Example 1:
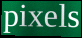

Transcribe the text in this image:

pixels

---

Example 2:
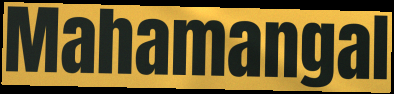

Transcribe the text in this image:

Mahamangal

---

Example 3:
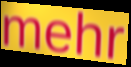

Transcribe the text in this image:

mehr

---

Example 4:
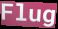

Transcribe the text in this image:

Flug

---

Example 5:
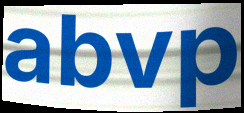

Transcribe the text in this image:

abvp